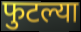
फुटल्या